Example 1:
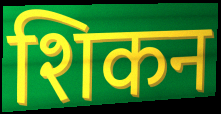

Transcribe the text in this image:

शिकन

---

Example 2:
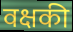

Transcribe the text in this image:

वक्षकी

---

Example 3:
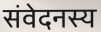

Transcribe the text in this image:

संवेदनस्य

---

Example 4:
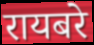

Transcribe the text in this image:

रायबरे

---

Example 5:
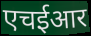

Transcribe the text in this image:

एचईआर